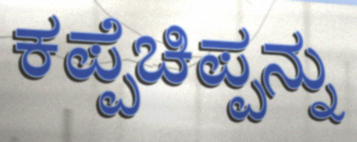
ಕಪ್ಪೆಚಿಪ್ಪನ್ನು